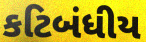
કટિબંધીય